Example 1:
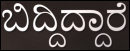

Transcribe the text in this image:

ಬಿದ್ದಿದ್ದಾರೆ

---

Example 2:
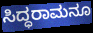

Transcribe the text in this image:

ಸಿದ್ಧರಾಮನೂ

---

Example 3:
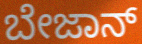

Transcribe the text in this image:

ಬೇಜಾನ್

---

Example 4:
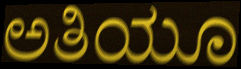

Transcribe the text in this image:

ಅತಿಯೂ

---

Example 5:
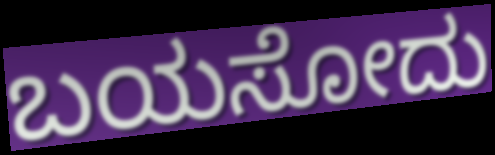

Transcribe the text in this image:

ಬಯಸೋದು